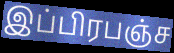
இப்பிரபஞ்ச